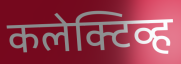
कलेक्टिव्ह